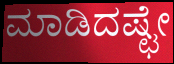
ಮಾಡಿದಷ್ಟೇ